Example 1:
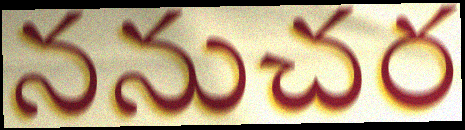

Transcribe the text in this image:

ననుచర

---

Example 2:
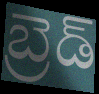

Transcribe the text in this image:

బ్రెడ్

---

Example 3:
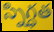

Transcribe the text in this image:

స్నిగ్ధత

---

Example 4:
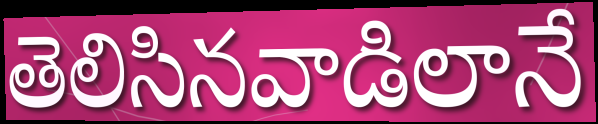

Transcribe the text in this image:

తెలిసినవాడిలానే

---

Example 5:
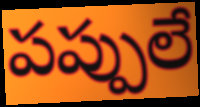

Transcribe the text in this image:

పప్పులే